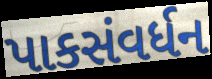
પાકસંવર્ધન